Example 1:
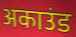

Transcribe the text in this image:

अकाउंड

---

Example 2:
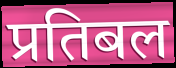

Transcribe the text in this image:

प्रतिबल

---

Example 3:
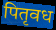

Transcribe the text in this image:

पितृवध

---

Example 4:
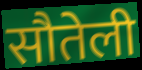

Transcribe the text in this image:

सौतेली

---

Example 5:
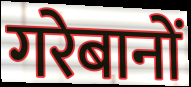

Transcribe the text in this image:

गरेबानों